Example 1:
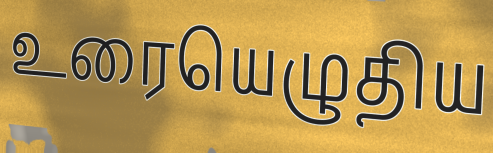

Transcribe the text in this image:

உரையெழுதிய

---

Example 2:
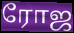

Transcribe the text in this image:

ரோஜ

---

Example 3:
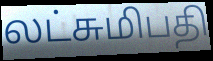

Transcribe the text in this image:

லட்சுமிபதி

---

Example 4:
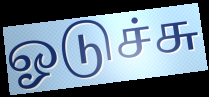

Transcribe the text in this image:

ஓடுச்சு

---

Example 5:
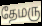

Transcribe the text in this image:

தேமரு